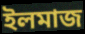
ইলমাজ